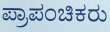
ಪ್ರಾಪಂಚಿಕರು